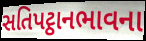
સતિપટ્ઠાનભાવના